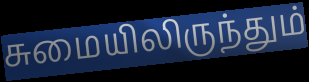
சுமையிலிருந்தும்